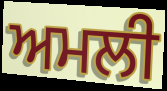
ਅਮਲੀ